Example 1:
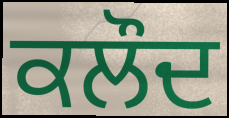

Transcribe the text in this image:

ਕਲੌਦ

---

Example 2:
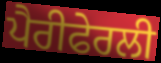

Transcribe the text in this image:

ਪੈਰੀਫੇਰਲੀ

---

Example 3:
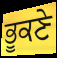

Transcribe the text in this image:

ਭੂਕਣੇ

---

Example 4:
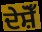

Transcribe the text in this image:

ਦੇਸ਼ੋਁ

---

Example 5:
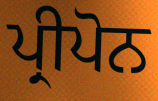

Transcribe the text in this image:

ਪ੍ਰੀਪੋਨ